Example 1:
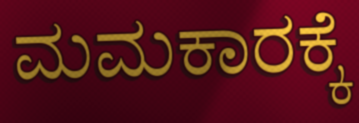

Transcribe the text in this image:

ಮಮಕಾರಕ್ಕೆ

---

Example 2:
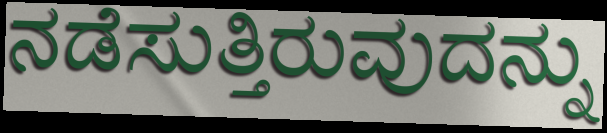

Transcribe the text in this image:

ನಡೆಸುತ್ತಿರುವುದನ್ನು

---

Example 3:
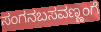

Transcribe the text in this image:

ಸಂಗನಬಸವಣ್ಣಂಗೆ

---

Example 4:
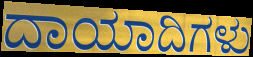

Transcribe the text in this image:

ದಾಯಾದಿಗಳು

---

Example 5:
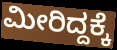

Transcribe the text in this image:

ಮೀರಿದ್ದಕ್ಕೆ